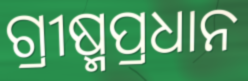
ଗ୍ରୀଷ୍ମପ୍ରଧାନ